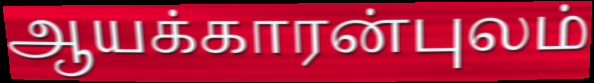
ஆயக்காரன்புலம்